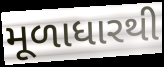
મૂળાધારથી